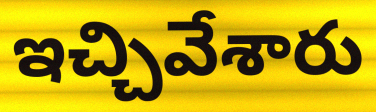
ఇచ్చివేశారు